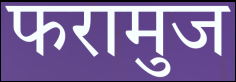
फरामुज